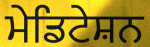
ਮੇਡਿਟੇਸ਼ਨ